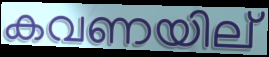
കവണയില്